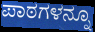
ಪಾಠಗಳನ್ನೂ